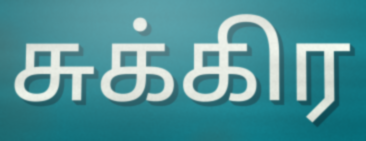
சுக்கிர